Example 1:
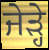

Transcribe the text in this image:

ਜੇੜ੍ਹੇ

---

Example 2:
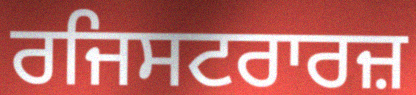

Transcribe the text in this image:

ਰਜਿਸਟਰਾਰਜ਼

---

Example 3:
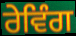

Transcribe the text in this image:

ਰੇਵਿੰਗ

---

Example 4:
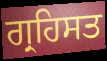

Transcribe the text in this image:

ਗ੍ਰਹਿਸਤ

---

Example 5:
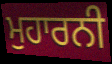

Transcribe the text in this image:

ਮੁਹਾਰਨੀ